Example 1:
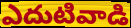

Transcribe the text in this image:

ఎదుటివాడి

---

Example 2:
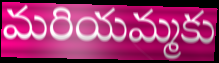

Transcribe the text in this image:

మరియమ్మకు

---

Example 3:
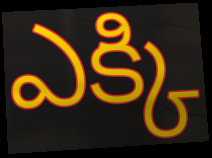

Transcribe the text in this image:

ఎక్కి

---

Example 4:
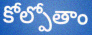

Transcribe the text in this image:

కోల్పోతాం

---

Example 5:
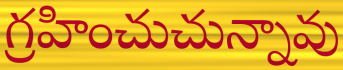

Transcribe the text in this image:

గ్రహించుచున్నావు